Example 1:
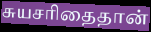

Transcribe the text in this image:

சுயசரிதைதான்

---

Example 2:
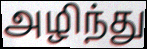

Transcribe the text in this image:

அழிந்து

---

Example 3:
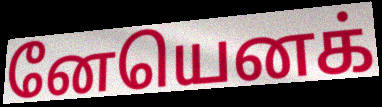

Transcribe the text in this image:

னேயெனக்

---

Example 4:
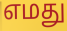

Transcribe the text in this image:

எமது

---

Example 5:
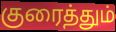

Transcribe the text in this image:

குரைத்தும்